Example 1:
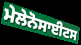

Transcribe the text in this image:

ਮੇਲੇਨੋਸਾਈਟਸ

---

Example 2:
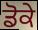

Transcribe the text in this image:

ਡੋਕੇ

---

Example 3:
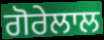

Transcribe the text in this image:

ਗੋਰੇਲਾਲ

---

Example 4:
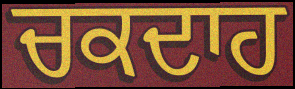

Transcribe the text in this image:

ਚਕਦਾਹ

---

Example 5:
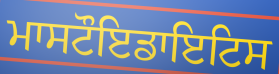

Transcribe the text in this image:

ਮਾਸਟੌਇਡਾਇਟਿਸ